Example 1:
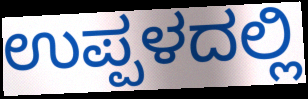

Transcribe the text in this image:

ಉಪ್ಪಳದಲ್ಲಿ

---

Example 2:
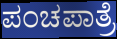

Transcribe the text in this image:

ಪಂಚಪಾತ್ರೆ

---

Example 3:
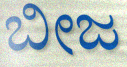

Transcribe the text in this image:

ಬೀಜ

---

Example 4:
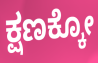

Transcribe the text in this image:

ಕ್ಷಣಕ್ಕೋ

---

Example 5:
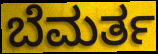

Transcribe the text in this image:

ಬೆಮರ್ತ